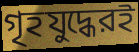
গৃহযুদ্ধেরই